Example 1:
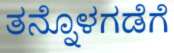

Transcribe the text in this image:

ತನ್ನೊಳಗಡೆಗೆ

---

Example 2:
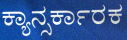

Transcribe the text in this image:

ಕ್ಯಾನ್ಸರ್ಕಾರಕ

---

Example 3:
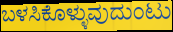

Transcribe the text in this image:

ಬಳಸಿಕೊಳ್ಳುವುದುಂಟು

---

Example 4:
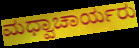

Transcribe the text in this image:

ಮಧ್ವಾಚಾರ್ಯರು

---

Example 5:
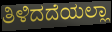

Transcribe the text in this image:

ತಿಳಿದದೆಯಲ್ಲಾ